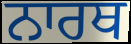
ਨਾਰਥ